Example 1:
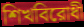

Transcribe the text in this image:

শিখবিরোধী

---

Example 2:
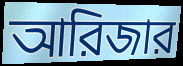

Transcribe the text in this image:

আরিজার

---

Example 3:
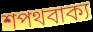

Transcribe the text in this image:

শপথবাক্য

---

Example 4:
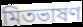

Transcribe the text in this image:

মিতভাষণ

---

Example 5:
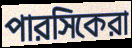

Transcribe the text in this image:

পারসিকেরা